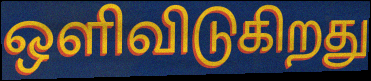
ஒளிவிடுகிறது